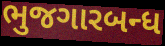
ભુજગારબન્ધ